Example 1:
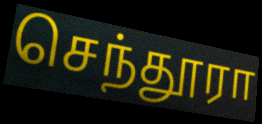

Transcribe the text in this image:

செந்தூரா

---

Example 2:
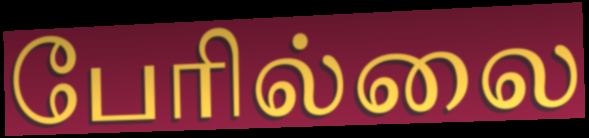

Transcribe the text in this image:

பேரில்லை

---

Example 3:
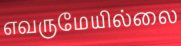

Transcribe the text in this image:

எவருமேயில்லை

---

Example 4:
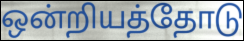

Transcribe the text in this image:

ஒன்றியத்தோடு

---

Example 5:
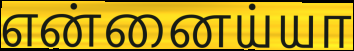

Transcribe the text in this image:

என்னைய்யா